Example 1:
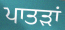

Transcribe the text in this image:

ਪਾਤੜਾਂ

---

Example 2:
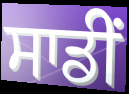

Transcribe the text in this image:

ਸਾਡੀਂ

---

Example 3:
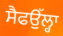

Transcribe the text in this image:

ਸੈਫਉੱਲ੍ਹਾ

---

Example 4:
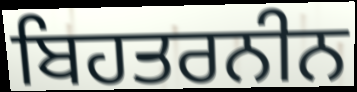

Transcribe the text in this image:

ਬਿਹਤਰਨੀਨ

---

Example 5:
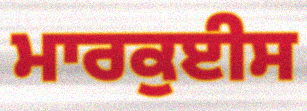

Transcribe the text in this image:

ਮਾਰਕੁਈਸ